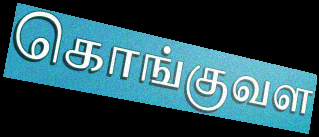
கொங்குவள